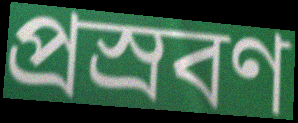
প্রস্রবণ